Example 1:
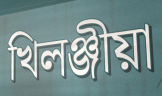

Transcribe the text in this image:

খিলঞ্জীয়া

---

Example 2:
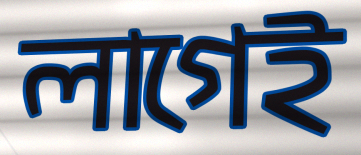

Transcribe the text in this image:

লাগেই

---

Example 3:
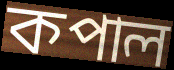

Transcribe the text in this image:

কপাল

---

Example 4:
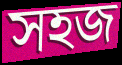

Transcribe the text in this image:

সহজ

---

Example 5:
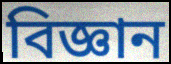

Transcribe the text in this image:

বিজ্ঞান